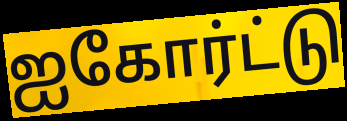
ஐகோர்ட்டு